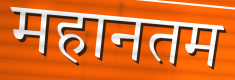
महानतम